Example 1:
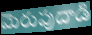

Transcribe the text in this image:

మెరుపుదాడి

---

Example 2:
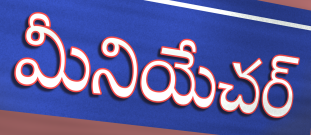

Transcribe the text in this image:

మీనియేచర్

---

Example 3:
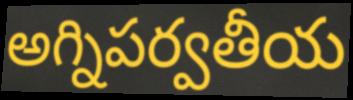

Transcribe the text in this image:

అగ్నిపర్వతీయ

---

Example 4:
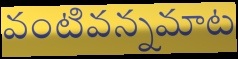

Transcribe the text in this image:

వంటివన్నమాట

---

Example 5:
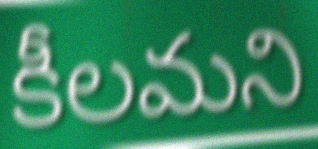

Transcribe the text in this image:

కీలమని